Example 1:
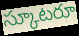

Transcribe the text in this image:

స్కూటరూ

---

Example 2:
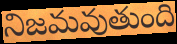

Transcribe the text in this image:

నిజమవుతుంది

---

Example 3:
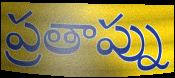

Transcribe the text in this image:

ప్రతాప్ను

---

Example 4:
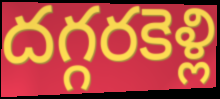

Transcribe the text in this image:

దగ్గరకెళ్లి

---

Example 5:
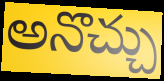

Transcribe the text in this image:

అనొచ్చు